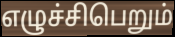
எழுச்சிபெறும்